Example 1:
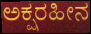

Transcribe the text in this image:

ಅಕ್ಷರಹೀನ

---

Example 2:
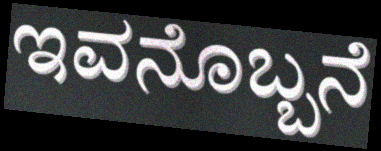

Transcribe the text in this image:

ಇವನೊಬ್ಬನೆ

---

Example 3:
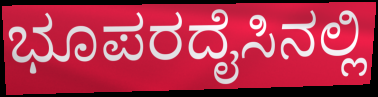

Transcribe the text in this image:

ಭೂಪರದೈಸಿನಲ್ಲಿ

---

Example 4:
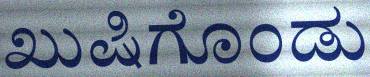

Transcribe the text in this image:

ಖುಷಿಗೊಂಡು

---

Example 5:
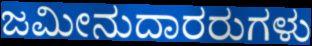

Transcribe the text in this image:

ಜಮೀನುದಾರರುಗಳು